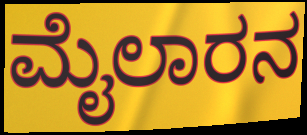
ಮೈಲಾರನ